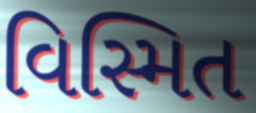
વિસ્મિત